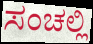
ಸಂಚಲ್ಲಿ